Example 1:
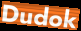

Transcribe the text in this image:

Dudok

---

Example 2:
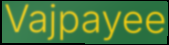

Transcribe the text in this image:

Vajpayee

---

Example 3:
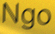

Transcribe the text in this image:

Ngo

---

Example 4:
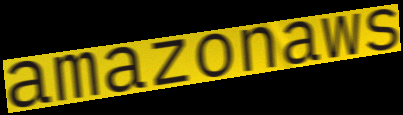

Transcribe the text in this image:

amazonaws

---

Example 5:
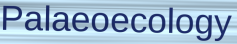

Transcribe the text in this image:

Palaeoecology